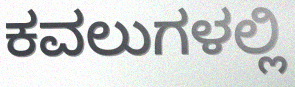
ಕವಲುಗಳಲ್ಲಿ